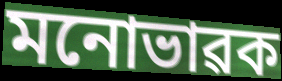
মনোভাৱক